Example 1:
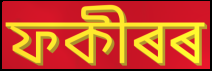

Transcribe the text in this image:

ফকীৰৰ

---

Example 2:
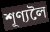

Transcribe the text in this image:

শূণ্যলৈ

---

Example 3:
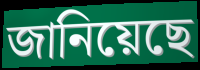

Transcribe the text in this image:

জানিয়েছে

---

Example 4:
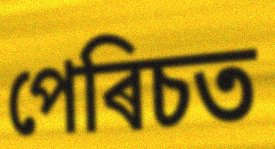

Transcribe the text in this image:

পেৰিচত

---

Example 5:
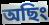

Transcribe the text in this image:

অছিং